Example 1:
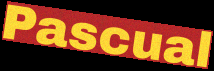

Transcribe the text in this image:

Pascual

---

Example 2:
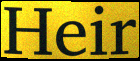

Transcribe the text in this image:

Heir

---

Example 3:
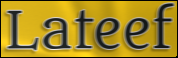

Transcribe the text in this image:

Lateef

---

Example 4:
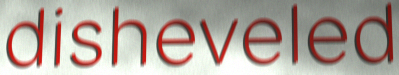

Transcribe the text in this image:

disheveled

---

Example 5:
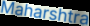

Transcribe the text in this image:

Maharshtra